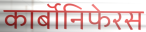
कार्बॉनिफेरस